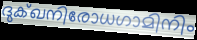
ദുക്ഖനിരോധഗാമിനിം